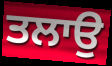
ਤਲਾਉ